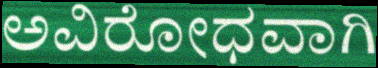
ಅವಿರೋಧವಾಗಿ